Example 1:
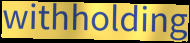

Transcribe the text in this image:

withholding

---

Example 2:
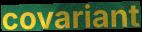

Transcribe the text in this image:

covariant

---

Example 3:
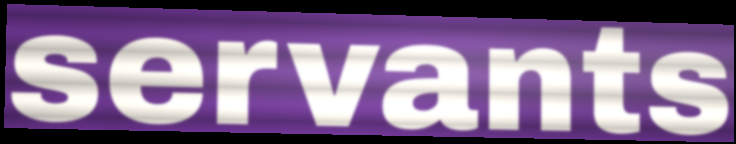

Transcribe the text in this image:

servants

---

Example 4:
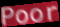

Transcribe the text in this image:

Poor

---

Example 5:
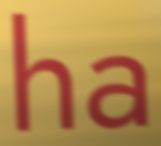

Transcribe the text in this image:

ha